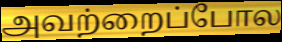
அவற்றைப்போல